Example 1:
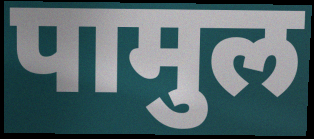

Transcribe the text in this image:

पामुल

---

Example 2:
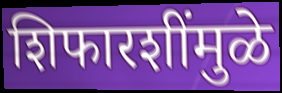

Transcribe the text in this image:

शिफारशींमुळे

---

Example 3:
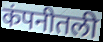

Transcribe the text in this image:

कंपनीतली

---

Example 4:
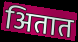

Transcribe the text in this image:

अितात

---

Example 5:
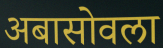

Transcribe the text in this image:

अबासोवला